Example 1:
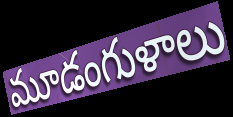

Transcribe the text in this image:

మూడంగుళాలు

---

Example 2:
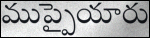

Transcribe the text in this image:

ముప్పైయారు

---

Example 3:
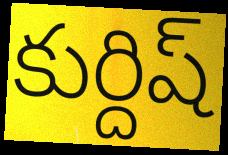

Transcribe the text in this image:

కుర్దిష్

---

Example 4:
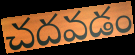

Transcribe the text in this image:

చదవడం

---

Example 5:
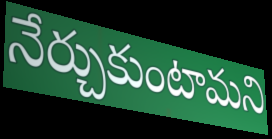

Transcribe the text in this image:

నేర్చుకుంటామని